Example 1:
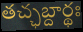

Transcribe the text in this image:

తచ్ఛబ్దార్థః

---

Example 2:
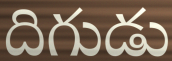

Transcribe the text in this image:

దిగుడు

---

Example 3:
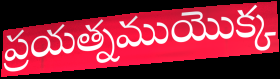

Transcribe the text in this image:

ప్రయత్నముయొక్క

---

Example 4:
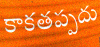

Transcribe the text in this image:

కాకతప్పదు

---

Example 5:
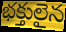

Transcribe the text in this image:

భక్తులైన